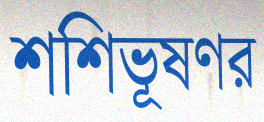
শশিভূষণর